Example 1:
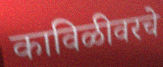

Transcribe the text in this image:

काविळीवरचे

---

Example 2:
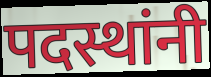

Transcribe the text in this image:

पदस्थांनी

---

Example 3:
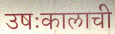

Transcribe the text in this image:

उषःकालाची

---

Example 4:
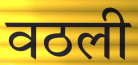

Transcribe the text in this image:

वठली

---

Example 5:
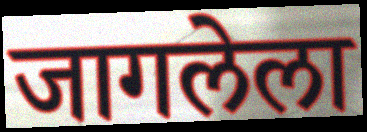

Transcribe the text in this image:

जागलेला